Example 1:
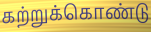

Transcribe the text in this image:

கற்றுக்கொண்டு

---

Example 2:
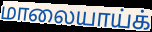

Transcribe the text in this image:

மாலையாய்க்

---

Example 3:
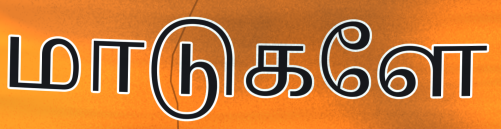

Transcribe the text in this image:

மாடுகளே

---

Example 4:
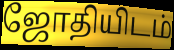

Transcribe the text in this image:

ஜோதியிடம்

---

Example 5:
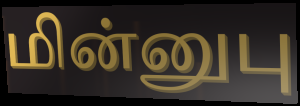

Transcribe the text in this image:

மின்னுபு